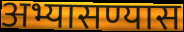
अभ्यासण्यास